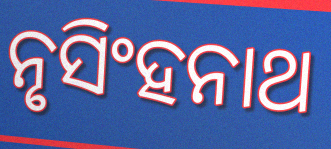
ନୃସିଂହନାଥ